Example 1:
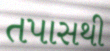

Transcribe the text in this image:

તપાસથી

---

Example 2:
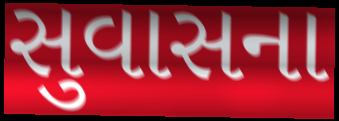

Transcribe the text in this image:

સુવાસના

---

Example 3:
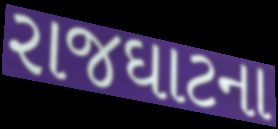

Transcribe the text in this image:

રાજઘાટના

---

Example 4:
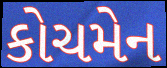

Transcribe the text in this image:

કોચમેન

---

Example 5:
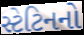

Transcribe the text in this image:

સ્ટેટિનનો